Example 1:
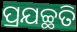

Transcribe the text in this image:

ପ୍ରଯଚ୍ଛତି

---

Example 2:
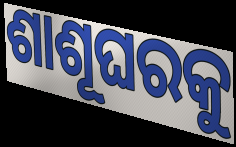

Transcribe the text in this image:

ଶାଶୂଘରକୁ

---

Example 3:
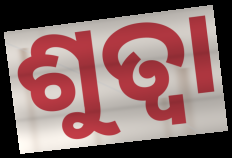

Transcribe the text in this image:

ଶୁତ୍ବା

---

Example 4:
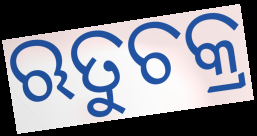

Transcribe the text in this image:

ଋତୁଚକ୍ର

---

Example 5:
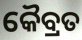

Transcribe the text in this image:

କୈବ୍ରତ